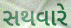
સથવારે